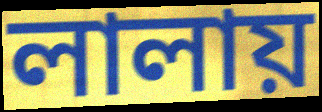
লালায়